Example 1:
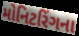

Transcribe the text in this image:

મોનિટરિંગના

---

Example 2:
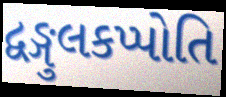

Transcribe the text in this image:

દ્વઙ્ગુલકપ્પોતિ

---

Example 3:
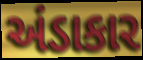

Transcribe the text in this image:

અંડાકાર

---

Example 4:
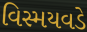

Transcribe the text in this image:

વિસ્મયવડે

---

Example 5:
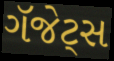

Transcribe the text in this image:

ગૅજેટ્સ